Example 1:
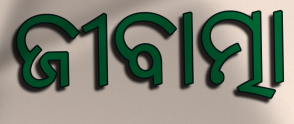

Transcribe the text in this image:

ଜୀବାତ୍ମା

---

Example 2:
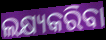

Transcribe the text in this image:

ଲକ୍ଷ୍ୟକରିବା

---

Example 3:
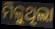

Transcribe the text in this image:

ମିଳୁଥିଲା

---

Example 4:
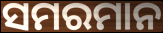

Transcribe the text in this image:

ସମରମାନ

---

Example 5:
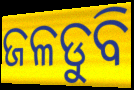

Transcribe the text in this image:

ଜଳଡୁବି